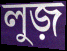
লুজ়